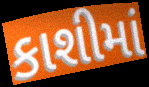
કાશીમાં